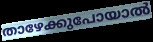
താഴേക്കുപോയാൽ